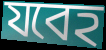
যবেহ